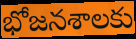
భోజనశాలకు